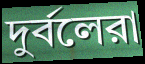
দুর্বলেরা